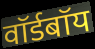
वॉर्डबॉय